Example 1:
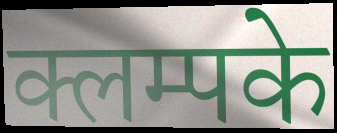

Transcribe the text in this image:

क्लम्पके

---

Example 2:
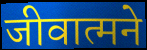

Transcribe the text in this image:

जीवात्मने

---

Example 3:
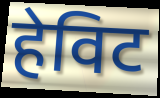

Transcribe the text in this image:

हेविट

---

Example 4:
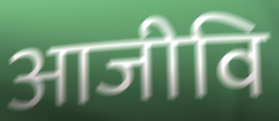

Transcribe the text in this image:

आजीवि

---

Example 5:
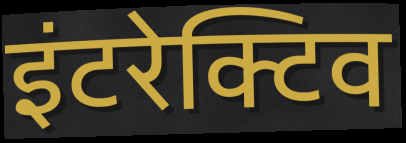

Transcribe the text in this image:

इंटरेक्टिव